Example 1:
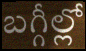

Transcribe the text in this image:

బగ్గీల్లో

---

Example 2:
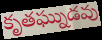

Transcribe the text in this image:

కృతఘ్నుడవు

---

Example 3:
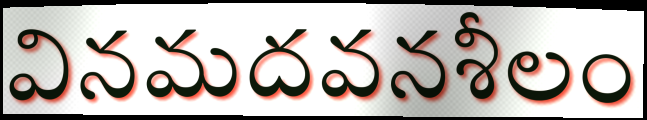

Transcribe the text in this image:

వినమదవనశీలం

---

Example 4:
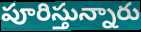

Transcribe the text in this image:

పూరిస్తున్నారు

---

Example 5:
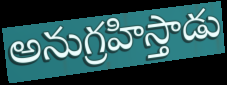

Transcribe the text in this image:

అనుగ్రహిస్తాడు